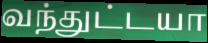
வந்துட்டயா